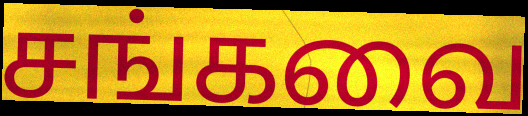
சங்கவை